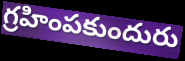
గ్రహింపకుందురు